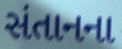
સંતાનના